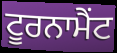
ਟੂਰਨਾਮੈਂਟ